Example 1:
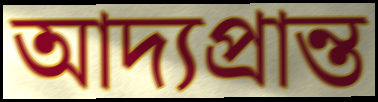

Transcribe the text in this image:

আদ্যপ্রান্ত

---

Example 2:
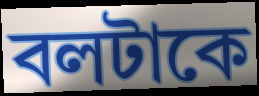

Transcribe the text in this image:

বলটাকে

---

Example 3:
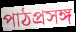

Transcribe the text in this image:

পাঠপ্রসঙ্গ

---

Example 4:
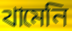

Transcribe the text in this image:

থামেনি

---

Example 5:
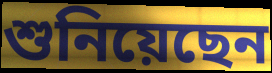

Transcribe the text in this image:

শুনিয়েছেন